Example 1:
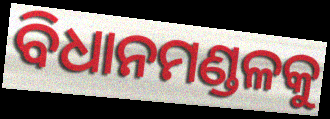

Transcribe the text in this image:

ବିଧାନମଣ୍ଡଳକୁ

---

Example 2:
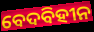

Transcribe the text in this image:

ବେଦବିହୀନ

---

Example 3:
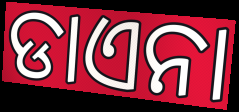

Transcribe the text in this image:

ଡାଏନା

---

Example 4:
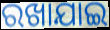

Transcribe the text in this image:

ରଖାଯାଇ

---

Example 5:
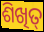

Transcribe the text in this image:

ଶିଖିତ୍